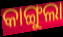
କାଙ୍ଗୁଲା